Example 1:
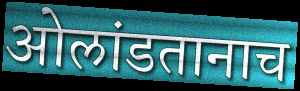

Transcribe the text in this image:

ओलांडतानाच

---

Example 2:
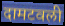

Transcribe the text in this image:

दामटवली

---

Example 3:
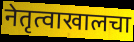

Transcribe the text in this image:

नेतृत्वाखालचा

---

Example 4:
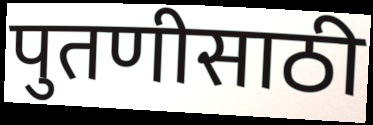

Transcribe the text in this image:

पुतणीसाठी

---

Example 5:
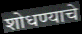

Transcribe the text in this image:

शोधण्याचे